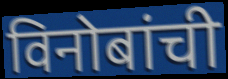
विनोबांची